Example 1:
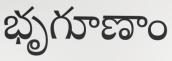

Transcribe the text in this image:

భృగూణాం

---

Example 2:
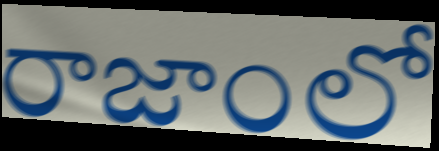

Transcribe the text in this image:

రాజాంలో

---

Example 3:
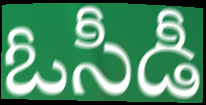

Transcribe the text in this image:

ఓసీడీ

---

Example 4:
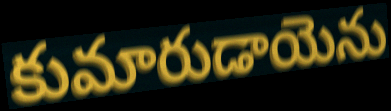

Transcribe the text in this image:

కుమారుడాయెను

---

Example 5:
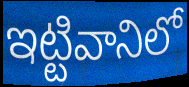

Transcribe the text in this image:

ఇట్టివానిలో